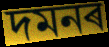
দমনৰ